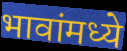
भावांमध्ये